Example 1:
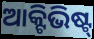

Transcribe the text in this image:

ଆକ୍ଟିଭିଷ୍ଟ୍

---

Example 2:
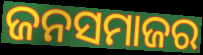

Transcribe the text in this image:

ଜନସମାଜର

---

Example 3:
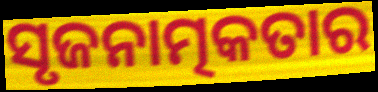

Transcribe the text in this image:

ସୃଜନାତ୍ମକତାର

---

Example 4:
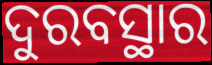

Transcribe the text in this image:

ଦୁରବସ୍ଥାର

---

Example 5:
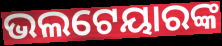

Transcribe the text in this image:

ଭଲଟେୟାରଙ୍କ